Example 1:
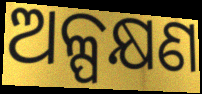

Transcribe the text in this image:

ଅଳ୍ପକ୍ଷଣ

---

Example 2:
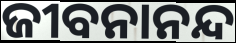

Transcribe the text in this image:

ଜୀବନାନନ୍ଦ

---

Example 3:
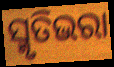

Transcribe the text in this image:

ସ୍ମୃତିଭରା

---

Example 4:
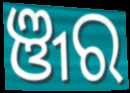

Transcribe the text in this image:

ଞ୍ଜର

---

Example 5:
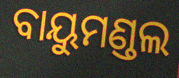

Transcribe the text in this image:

ବାୟୁମଣ୍ଡଲ